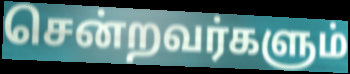
சென்றவர்களும்